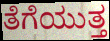
ತೆಗೆಯುತ್ತ